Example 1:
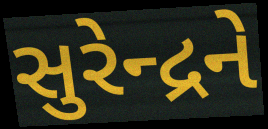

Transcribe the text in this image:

સુરેન્દ્રને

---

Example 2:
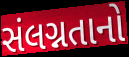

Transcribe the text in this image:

સંલગ્નતાનો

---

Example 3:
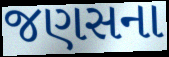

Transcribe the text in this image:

જણસના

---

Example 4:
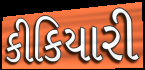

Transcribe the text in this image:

કીકિયારી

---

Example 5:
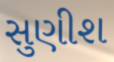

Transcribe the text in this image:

સુણીશ